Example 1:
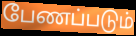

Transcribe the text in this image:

பேணப்படும்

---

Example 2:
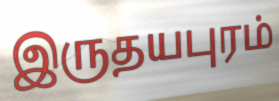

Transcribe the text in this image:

இருதயபுரம்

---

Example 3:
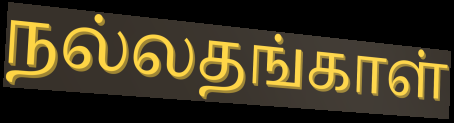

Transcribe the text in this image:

நல்லதங்காள்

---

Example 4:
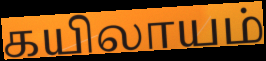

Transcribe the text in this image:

கயிலாயம்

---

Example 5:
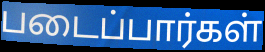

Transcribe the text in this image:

படைப்பார்கள்